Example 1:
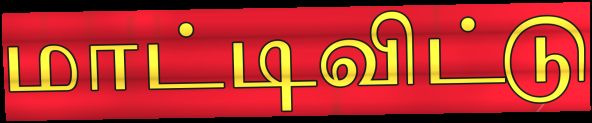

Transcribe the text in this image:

மாட்டிவிட்டு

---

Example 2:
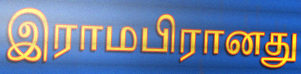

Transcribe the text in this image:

இராமபிரானது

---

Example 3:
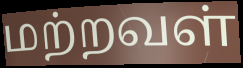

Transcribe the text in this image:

மற்றவள்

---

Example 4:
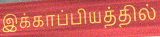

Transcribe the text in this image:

இக்காப்பியத்தில்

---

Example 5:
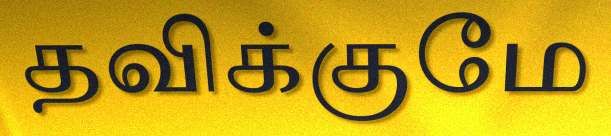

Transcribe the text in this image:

தவிக்குமே